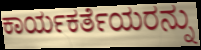
ಕಾರ್ಯಕರ್ತೆಯರನ್ನು